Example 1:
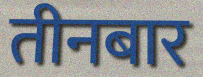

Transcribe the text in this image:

तीनबार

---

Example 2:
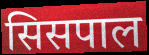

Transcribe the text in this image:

सिसपाल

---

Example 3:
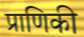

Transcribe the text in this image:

प्राणिकी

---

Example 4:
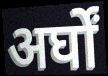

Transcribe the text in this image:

अर्घों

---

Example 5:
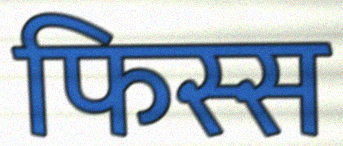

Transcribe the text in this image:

फिस्स